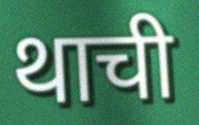
थाची